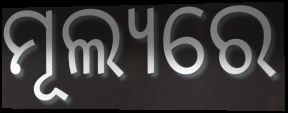
ମୂଲ୍ଯରେ